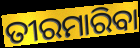
ତୀରମାରିବା